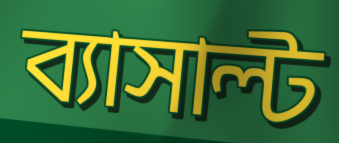
ব্যাসাল্ট